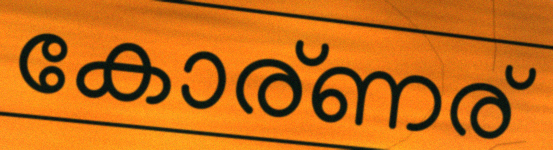
കോര്ണര്